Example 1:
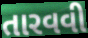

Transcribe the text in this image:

તારવવી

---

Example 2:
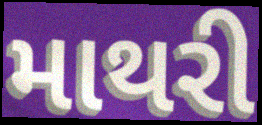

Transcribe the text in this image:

માથરી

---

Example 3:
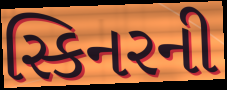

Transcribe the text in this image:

સ્કિનરની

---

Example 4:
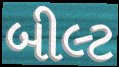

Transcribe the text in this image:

બીલ્ટ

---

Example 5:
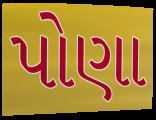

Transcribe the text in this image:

પોણા